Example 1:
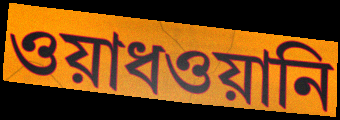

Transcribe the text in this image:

ওয়াধওয়ানি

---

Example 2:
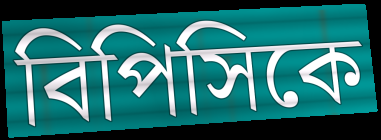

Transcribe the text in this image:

বিপিসিকে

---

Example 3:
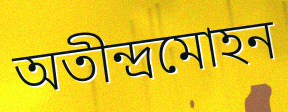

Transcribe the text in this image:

অতীন্দ্রমোহন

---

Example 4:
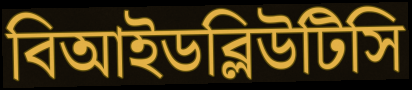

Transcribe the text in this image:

বিআইডব্লিউটিসি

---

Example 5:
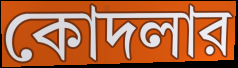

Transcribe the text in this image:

কোদলার